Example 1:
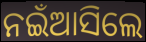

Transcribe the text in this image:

ନଇଁଆସିଲେ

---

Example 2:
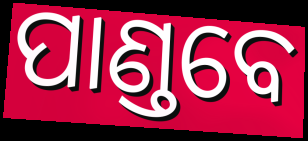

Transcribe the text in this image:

ପାଣ୍ଡବେ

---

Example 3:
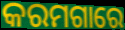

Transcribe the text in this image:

କରମଗାରେ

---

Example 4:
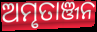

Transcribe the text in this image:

ଅମୃତାଞ୍ଜନ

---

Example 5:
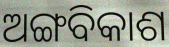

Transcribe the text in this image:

ଅଙ୍ଗବିକାଶ